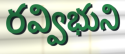
రవ్విభుని